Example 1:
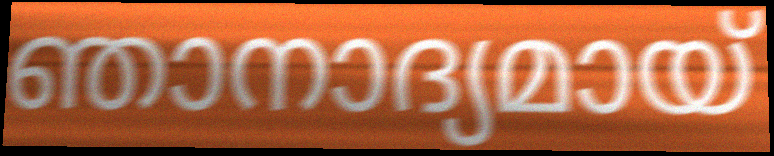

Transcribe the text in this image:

ഞാനാദ്യമായ്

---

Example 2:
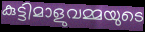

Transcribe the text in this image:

കുട്ടിമാളുവമ്മയുടെ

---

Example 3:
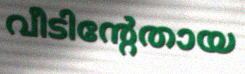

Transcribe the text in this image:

വീടിന്റേതായ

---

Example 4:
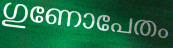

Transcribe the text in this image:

ഗുണോപേതം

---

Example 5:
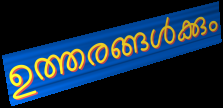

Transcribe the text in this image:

ഉത്തരങ്ങൾക്കും